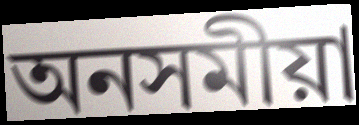
অনসমীয়া